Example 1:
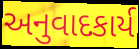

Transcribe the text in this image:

અનુવાદકાર્ય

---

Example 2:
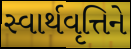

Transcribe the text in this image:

સ્વાર્થવૃત્તિને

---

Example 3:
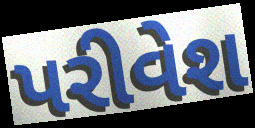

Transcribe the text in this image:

પરીવેશ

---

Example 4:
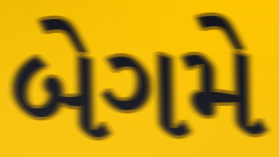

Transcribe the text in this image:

બેગમે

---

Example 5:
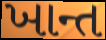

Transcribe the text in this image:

ખાન્ત